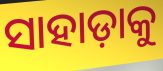
ସାହାଡ଼ାକୁ